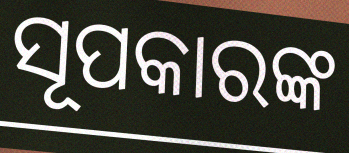
ସୂପକାରଙ୍କ